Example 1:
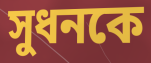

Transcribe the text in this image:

সুধনকে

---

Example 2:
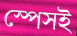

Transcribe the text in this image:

স্পেসই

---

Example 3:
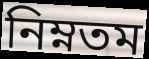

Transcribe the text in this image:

নিম্নতম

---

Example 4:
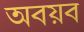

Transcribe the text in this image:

অবয়ব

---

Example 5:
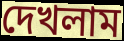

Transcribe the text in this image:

দেখলাম